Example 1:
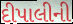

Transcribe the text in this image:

દીપાલીની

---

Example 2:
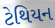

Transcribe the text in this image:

ટેથિયન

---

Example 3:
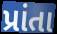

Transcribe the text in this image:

પ્રાંતા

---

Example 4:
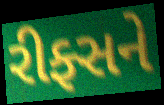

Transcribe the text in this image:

રીફ્સને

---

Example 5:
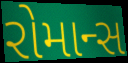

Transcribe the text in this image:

રોમાન્સ